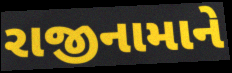
રાજીનામાને